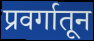
प्रवर्गातून